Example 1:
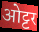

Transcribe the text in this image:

ओट्टर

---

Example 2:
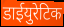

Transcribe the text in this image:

डाईयुरेटिक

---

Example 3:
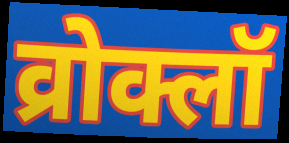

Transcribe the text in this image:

व्रोक्लॉ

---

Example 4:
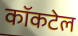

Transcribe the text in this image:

कॉकटेल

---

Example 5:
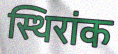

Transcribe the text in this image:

स्थिरांक